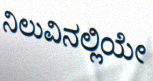
ನಿಲುವಿನಲ್ಲಿಯೇ